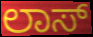
ಲಾಸ್